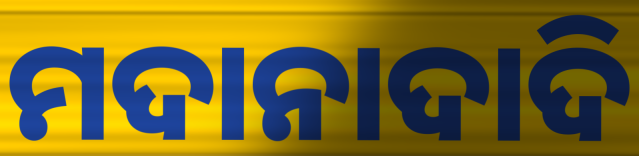
ମଦାନାଦାଦି